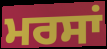
ਮਰਸਾਂ